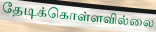
தேடிக்கொள்ளவில்லை